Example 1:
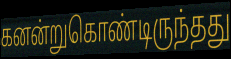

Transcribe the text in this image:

கனன்றுகொண்டிருந்தது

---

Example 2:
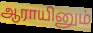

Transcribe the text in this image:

ஆராயினும்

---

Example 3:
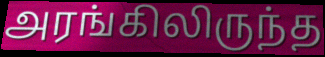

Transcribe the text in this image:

அரங்கிலிருந்த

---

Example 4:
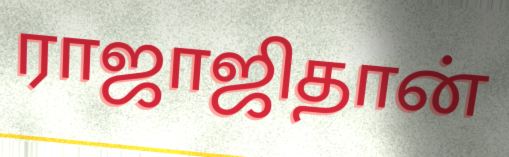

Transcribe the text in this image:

ராஜாஜிதான்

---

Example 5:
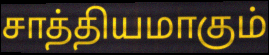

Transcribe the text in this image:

சாத்தியமாகும்